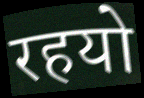
रहयो